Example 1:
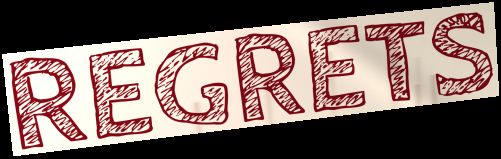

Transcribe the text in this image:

REGRETS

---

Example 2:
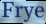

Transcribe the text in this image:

Frye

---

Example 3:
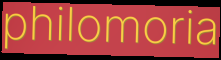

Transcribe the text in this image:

philomoria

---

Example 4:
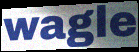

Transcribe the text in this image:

wagle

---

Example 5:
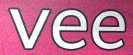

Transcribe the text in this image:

vee